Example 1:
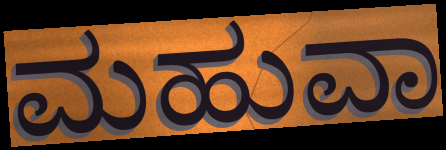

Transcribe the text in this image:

ಮಹುವಾ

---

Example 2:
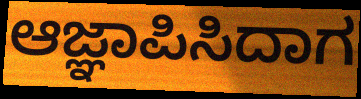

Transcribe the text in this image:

ಆಜ್ಞಾಪಿಸಿದಾಗ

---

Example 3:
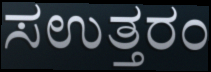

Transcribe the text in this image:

ಸಉತ್ತರಂ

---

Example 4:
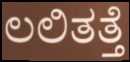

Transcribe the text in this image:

ಲಲಿತತ್ತೆ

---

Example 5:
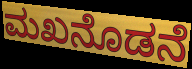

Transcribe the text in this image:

ಮಖನೊಡನೆ